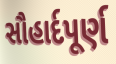
સૌહાર્દપૂર્ણ